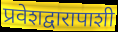
प्रवेशद्वारापाशी